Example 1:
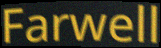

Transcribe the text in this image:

Farwell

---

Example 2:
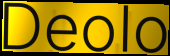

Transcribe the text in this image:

Deolo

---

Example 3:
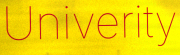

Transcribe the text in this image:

Univerity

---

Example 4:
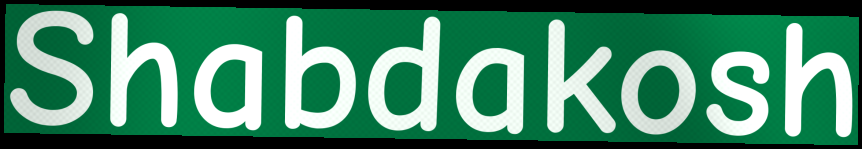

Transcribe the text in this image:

Shabdakosh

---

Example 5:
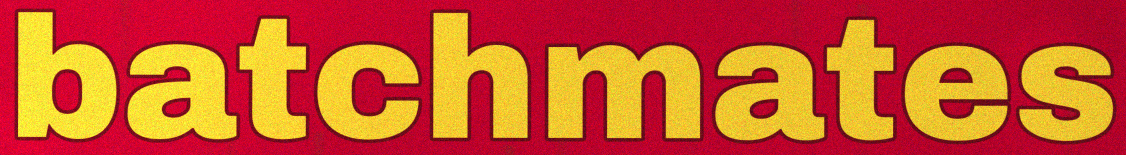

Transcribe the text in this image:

batchmates